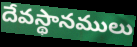
దేవస్థానములు